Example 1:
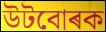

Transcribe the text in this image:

উটবোৰক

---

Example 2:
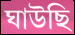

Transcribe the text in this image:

ঘাউছি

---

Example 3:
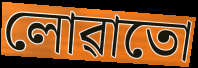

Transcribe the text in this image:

লোৱাতো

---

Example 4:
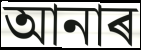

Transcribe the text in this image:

আনাৰ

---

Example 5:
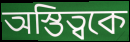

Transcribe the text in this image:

অস্তিত্বকে